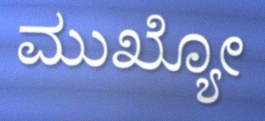
ಮುಖ್ಯೋ